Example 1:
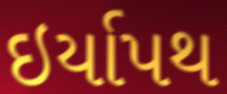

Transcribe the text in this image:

ઇર્યાપથ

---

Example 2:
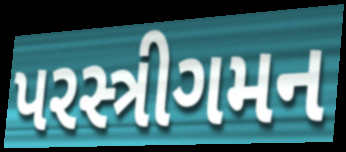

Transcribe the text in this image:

પરસ્ત્રીગમન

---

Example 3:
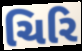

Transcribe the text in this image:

ચિરિ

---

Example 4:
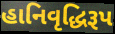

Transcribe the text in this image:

હાનિવૃદ્ધિરૂપ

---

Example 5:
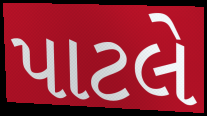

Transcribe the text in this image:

પાટલે